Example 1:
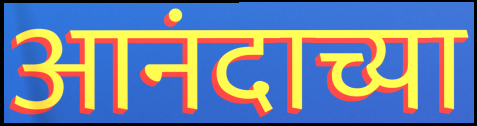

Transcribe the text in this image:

आनंदाच्या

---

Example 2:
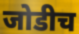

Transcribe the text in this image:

जोडीच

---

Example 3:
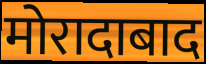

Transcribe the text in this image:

मोरादाबाद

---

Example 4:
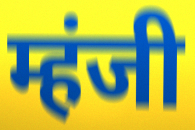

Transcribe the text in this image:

म्हंजी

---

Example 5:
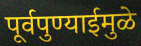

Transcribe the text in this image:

पूर्वपुण्याईमुळे